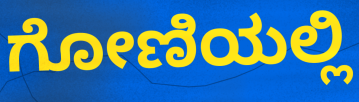
ಗೋಣಿಯಲ್ಲಿ